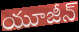
యూజీన్